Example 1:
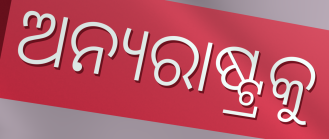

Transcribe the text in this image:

ଅନ୍ୟରାଷ୍ଟ୍ରକୁ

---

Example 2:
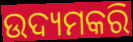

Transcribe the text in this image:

ଉଦ୍ୟମକରି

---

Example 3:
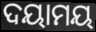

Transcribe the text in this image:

ଦୟାମୟ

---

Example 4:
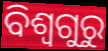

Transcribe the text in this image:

ବିଶ୍ୱଗୁରୁ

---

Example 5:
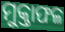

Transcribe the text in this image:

ମୁକ୍ତାଫଳ